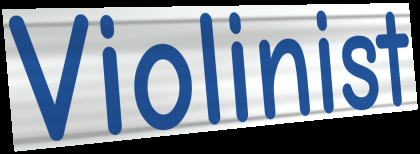
Violinist